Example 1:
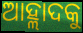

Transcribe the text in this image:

ଆହ୍ଲାଦକୁ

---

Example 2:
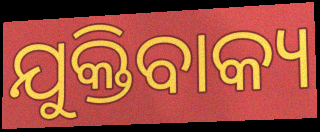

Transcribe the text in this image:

ଯୁକ୍ତିବାକ୍ୟ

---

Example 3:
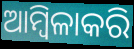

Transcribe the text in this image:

ଆମ୍ବିଳାକରି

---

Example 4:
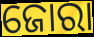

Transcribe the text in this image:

ଜୋରା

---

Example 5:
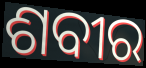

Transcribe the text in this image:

ଶବୀର